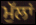
ਮੁੱਲਾਂ